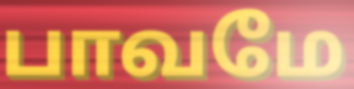
பாவமே